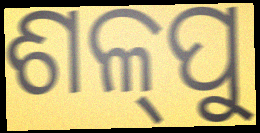
ଶଳ୍‍ପୁ